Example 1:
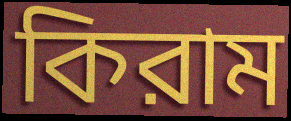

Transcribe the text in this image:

কিরাম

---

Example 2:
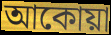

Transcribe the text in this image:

আকোয়া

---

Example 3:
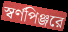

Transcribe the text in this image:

স্বর্ণপিঞ্জরে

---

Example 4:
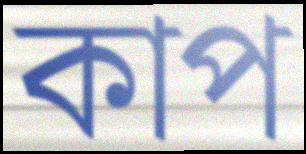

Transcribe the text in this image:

কাপ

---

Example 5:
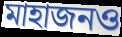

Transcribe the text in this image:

মাহাজনও